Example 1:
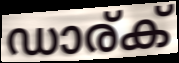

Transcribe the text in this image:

ഡാര്ക്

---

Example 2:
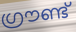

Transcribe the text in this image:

ഗ്രൗണ്ട്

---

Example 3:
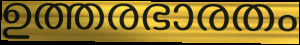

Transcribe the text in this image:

ഉത്തരഭാരതം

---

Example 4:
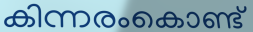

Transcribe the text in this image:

കിന്നരംകൊണ്ട്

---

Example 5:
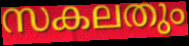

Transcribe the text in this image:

സകലതും